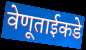
वेणूताईकडे